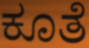
ಕೂತೆ